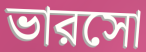
ভারসো